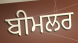
ਬੀਮਲਰ